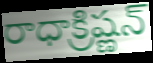
రాధాక్రిష్ణన్